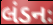
લંડનઃ